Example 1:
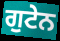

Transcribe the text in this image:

ਗੁਟੇਨ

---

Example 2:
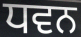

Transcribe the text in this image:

ਧਵਨ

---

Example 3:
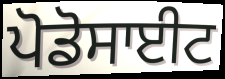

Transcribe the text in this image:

ਪੋਡੋਸਾਈਟ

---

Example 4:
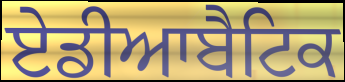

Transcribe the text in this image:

ਏਡੀਆਬੈਟਿਕ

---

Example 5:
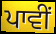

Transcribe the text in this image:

ਪਾਵੀਂ